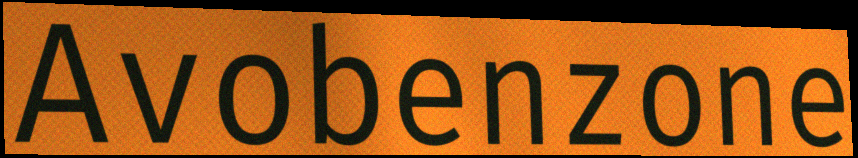
Avobenzone